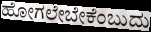
ಹೋಗಲೇಬೇಕೆಂಬುದು